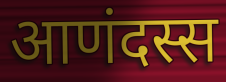
आणंदस्स